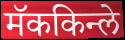
मॅककिन्ले